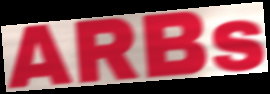
ARBs